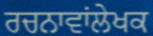
ਰਚਨਾਵਾਂਲੇਖਕ